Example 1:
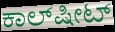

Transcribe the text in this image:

ಕಾಲ್‌ಷೀಟ್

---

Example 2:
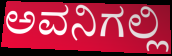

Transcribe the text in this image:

ಅವನಿಗಲ್ಲಿ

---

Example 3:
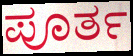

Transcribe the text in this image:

ಪೂರ್ತ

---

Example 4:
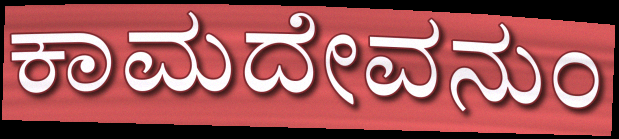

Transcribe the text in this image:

ಕಾಮದೇವನುಂ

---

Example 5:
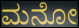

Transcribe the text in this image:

ಮನೋ